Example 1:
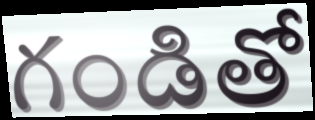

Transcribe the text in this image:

గండితో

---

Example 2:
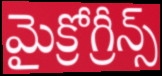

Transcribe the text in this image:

మైక్రోగ్రీన్స్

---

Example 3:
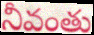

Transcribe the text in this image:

నీవంతు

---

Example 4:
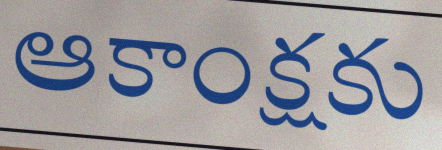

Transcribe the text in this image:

ఆకాంక్షకు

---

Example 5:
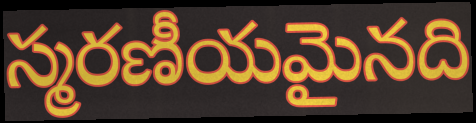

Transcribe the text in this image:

స్మరణీయమైనది